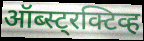
ऑब्स्ट्रक्टिव्ह